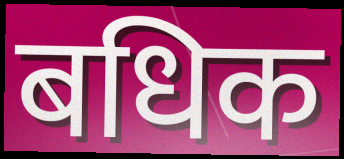
बधिक